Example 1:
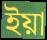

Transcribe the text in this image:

ইয়া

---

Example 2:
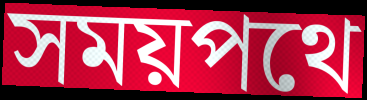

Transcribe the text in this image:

সময়পথে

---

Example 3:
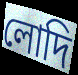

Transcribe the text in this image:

লোদি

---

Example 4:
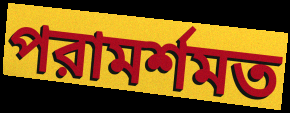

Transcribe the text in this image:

পরামর্শমত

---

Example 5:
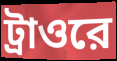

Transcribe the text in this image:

ট্রাওরে